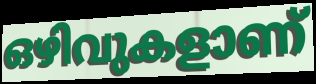
ഒഴിവുകളാണ്